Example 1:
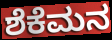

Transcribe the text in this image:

ಶೆಕೆಮನ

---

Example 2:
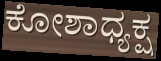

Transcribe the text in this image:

ಕೋಶಾಧ್ಯಕ್ಷ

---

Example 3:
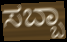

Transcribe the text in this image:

ಸಬ್ಬಾ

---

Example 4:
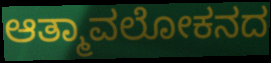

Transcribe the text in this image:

ಆತ್ಮಾವಲೋಕನದ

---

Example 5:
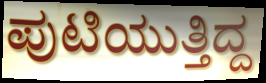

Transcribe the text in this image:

ಪುಟಿಯುತ್ತಿದ್ದ